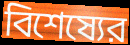
বিশেষ্যের